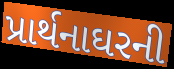
પ્રાર્થનાઘરની